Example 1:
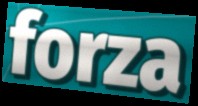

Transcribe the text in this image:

forza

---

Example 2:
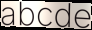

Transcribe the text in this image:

abcde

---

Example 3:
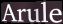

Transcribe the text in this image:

Arule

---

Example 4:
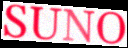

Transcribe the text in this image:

SUNO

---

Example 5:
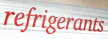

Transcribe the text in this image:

refrigerants